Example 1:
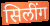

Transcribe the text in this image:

सिलींग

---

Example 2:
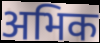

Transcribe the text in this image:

अभिक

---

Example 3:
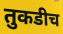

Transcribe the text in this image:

तुकडीच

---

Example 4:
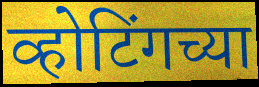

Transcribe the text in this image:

व्होटिंगच्या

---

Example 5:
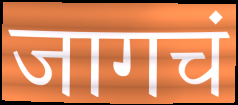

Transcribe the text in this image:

जागचं